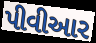
પીવીઆર